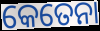
କେତେନା